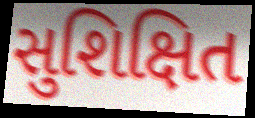
સુશિક્ષિત